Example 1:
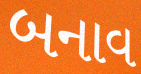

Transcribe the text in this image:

બનાવ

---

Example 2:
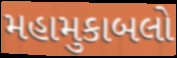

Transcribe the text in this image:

મહામુકાબલો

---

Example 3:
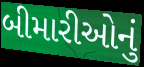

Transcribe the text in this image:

બીમારીઓનું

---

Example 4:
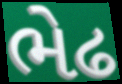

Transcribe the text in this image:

ભેઢ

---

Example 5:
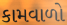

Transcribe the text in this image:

કામવાળો